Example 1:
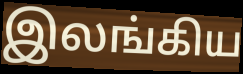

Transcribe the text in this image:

இலங்கிய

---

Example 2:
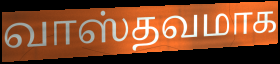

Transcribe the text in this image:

வாஸ்தவமாக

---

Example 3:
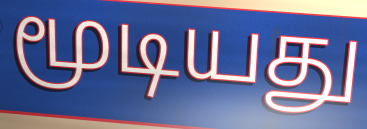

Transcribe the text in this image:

மூடியது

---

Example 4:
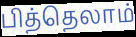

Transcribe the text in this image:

பித்தெலாம்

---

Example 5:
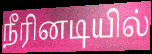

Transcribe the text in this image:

நீரினடியில்